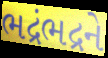
ભદ્રંભદ્રને